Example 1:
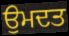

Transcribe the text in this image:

ਉਮਦਤ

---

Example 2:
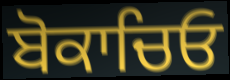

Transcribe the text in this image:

ਬੋਕਾਚਿਓ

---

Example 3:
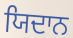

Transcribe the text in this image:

ਯਿਦਾਨ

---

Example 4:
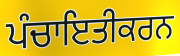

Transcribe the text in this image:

ਪੰਚਾਇਤੀਕਰਨ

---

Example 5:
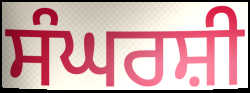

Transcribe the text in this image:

ਸੰਘਰਸ਼ੀ